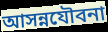
আসন্নযৌবনা